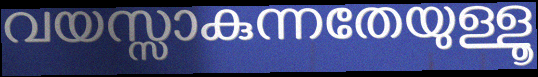
വയസ്സാകുന്നതേയുള്ളൂ